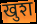
खुश